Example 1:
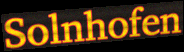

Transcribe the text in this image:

Solnhofen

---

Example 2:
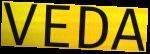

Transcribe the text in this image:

VEDA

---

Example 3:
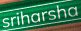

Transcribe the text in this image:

sriharsha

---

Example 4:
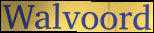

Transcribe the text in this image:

Walvoord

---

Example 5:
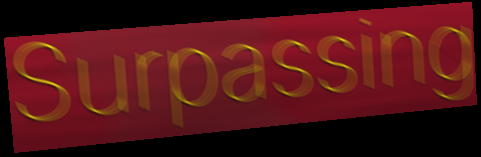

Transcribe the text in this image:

Surpassing